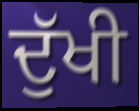
ਦੁੱਖੀ